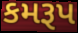
કમરૂપ